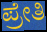
ಪ್ರೇತಿ